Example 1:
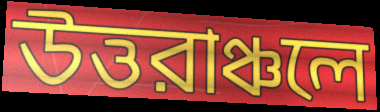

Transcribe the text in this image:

উত্তরাঞ্চলে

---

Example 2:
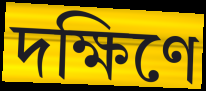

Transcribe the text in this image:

দক্ষিণে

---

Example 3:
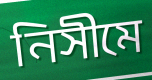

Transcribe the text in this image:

নিসীমে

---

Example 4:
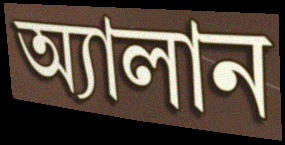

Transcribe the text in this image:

অ্যালান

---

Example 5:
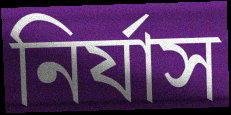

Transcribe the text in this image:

নির্যাস